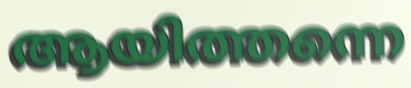
ആയിത്തന്നെ